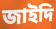
জাইদি